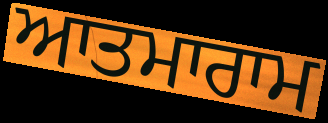
ਆਤਮਾਰਾਮ